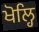
ਖੋਲ੍ਹਿ